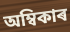
অম্বিকাৰ